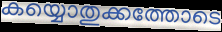
കയ്യൊതുക്കത്തോടെ